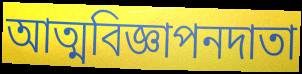
আত্মবিজ্ঞাপনদাতা